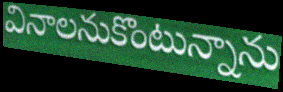
వినాలనుకొంటున్నాను